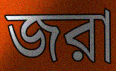
জরা